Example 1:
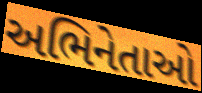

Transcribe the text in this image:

અભિનેતાઓ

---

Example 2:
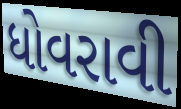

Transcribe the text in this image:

ધોવરાવી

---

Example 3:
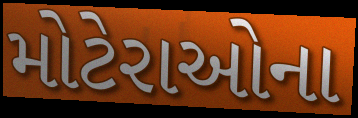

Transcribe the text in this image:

મોટેરાઓના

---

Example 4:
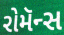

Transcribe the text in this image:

રોમૅન્સ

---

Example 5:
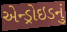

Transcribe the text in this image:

એન્ડ્રોઇડનું